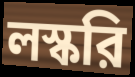
লস্করি